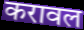
करावल